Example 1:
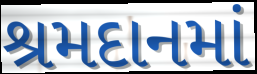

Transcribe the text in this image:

શ્રમદાનમાં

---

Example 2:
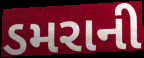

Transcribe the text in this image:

ડમરાની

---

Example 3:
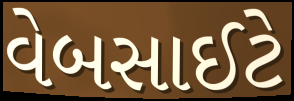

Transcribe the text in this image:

વેબસાઈટે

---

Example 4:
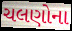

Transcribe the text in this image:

ચલણોના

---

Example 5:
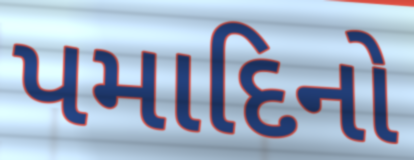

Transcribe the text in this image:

પમાદિનો